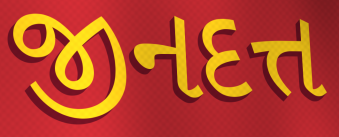
જીનદત્ત